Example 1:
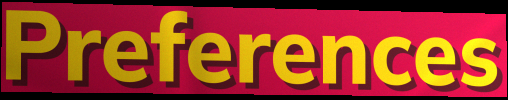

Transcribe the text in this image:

Preferences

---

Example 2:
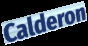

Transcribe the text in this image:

Calderon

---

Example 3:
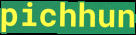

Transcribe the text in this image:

pichhun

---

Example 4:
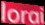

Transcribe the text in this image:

lorai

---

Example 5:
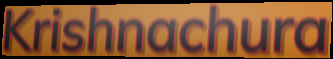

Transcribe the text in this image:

Krishnachura